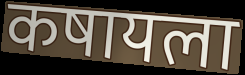
कषायला